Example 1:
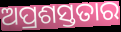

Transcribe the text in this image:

ଅପ୍ରଶସ୍ତତାର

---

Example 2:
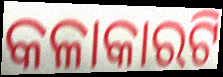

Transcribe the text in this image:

କଳାକାରଟି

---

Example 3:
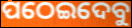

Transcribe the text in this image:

ପଠେଇଦେବୁ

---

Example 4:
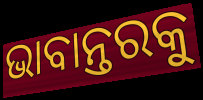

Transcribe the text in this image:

ଭାବାନ୍ତରକୁ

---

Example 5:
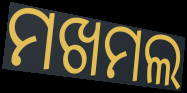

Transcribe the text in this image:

ମଖମଲ